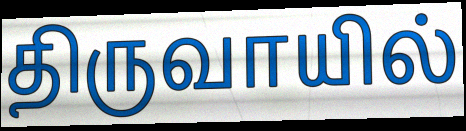
திருவாயில்